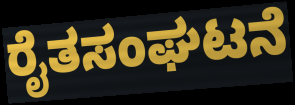
ರೈತಸಂಘಟನೆ